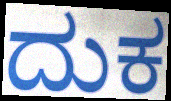
ದುಕ